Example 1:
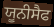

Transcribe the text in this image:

ਯੂਨੀਸੈਫ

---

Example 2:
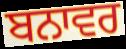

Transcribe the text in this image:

ਬਨਾਵਰ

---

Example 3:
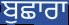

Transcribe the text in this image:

ਬੁਛਾਰਾ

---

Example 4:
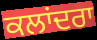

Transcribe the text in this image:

ਕਲਾਂਦਰਾ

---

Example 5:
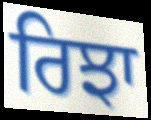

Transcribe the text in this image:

ਰਿਝਾ